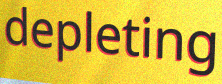
depleting